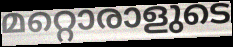
മറ്റൊരാളുടെ